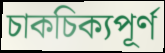
চাকচিক্যপূর্ণ